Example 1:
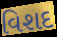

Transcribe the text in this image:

વિશદ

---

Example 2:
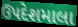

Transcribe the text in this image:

ઉપદેશમાલા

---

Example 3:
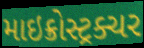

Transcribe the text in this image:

માઇક્રોસ્ટ્રક્ચર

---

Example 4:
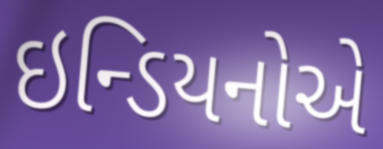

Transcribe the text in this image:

ઇન્ડિયનોએ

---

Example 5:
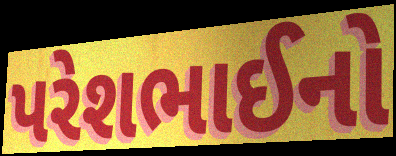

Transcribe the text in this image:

પરેશભાઈનો